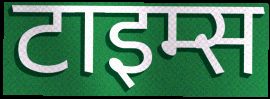
टाइम्स